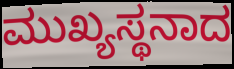
ಮುಖ್ಯಸ್ಥನಾದ